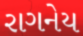
રાગનેય